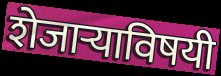
शेजाऱ्याविषयी